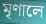
মৃণালে